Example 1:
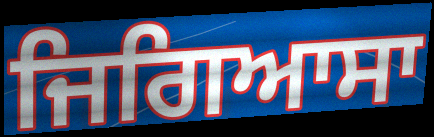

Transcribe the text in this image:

ਜਿਗਿਆਸਾ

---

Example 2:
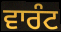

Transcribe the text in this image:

ਵਾਰੰਟ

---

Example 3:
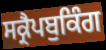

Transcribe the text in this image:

ਸਕ੍ਰੈਪਬੁਕਿੰਗ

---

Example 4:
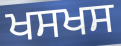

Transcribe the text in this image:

ਖਸਖਸ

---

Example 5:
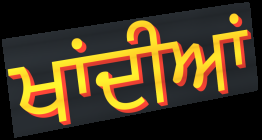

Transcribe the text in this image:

ਖਾਂਦੀਆਂ